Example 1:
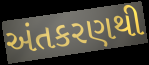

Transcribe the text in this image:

અંતકરણથી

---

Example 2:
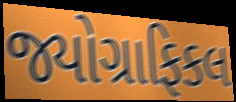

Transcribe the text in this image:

જ્યોગ્રાફિકલ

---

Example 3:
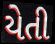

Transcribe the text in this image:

યેતી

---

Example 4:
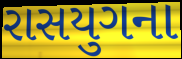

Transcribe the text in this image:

રાસયુગના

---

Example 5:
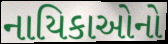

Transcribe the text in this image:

નાયિકાઓનો